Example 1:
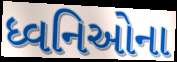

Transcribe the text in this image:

ધ્વનિઓના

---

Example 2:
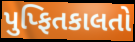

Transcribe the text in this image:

પુપ્ફિતકાલતો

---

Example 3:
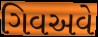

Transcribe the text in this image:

ગિવઅવે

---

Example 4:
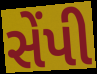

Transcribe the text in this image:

સેંપી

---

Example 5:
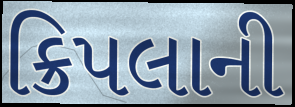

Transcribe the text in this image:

ક્રિપલાની